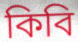
কিবি